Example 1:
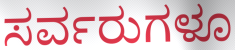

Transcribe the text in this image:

ಸರ್ವರುಗಳೂ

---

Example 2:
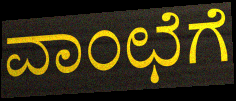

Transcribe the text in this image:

ವಾಂಛೆಗೆ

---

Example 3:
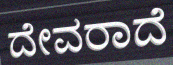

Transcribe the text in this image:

ದೇವರಾದೆ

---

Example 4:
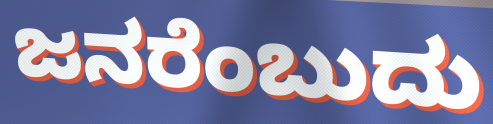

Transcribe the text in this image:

ಜನರೆಂಬುದು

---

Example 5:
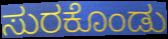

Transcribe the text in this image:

ಸುರಕೊಂಡು